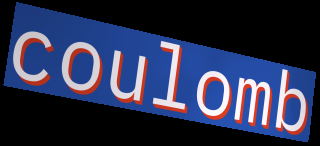
coulomb